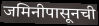
जमिनीपासूनची